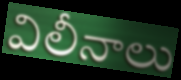
విలీనాలు